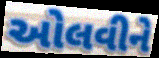
ઓલવીને